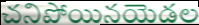
చనిపోయినయెడల